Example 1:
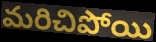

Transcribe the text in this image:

మరిచిపోయి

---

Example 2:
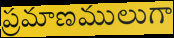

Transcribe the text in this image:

ప్రమాణములుగా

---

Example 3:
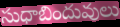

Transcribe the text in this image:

సుధాబిందువులు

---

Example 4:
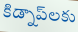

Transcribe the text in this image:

కిడ్నాప్‌లకు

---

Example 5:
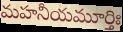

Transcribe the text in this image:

మహనీయమూర్తిః